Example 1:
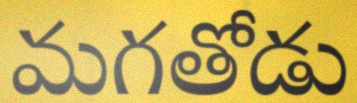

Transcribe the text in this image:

మగతోడు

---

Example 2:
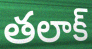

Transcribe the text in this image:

తలాక్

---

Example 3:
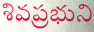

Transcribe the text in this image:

శివప్రభుని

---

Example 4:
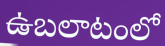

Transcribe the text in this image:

ఉబలాటంలో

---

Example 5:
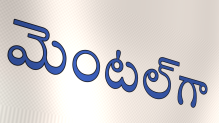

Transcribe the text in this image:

మెంటల్‌గా